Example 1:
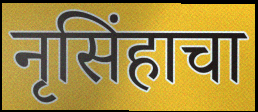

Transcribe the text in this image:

नृसिंहाचा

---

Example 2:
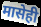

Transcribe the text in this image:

मासेही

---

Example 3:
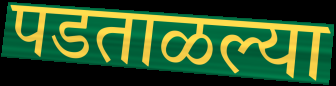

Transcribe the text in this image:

पडताळल्या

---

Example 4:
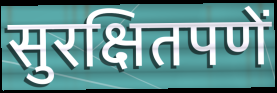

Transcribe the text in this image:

सुरक्षितपणें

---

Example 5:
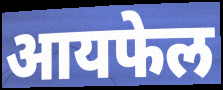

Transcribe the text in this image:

आयफेल